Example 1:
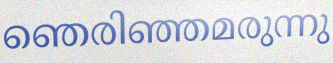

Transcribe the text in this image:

ഞെരിഞ്ഞമരുന്നു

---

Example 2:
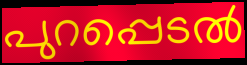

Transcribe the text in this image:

പുറപ്പെടൽ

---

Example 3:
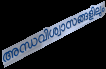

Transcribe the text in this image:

അന്ധവിശ്വാസങ്ങളിലും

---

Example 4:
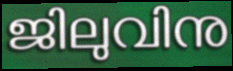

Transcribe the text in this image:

ജിലുവിനു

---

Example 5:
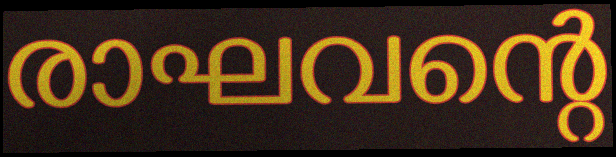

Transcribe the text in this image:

രാഘവന്റെ